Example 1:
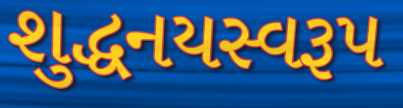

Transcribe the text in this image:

શુદ્ધનયસ્વરૂપ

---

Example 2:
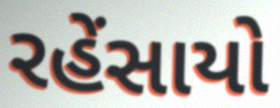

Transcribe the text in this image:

રહેંસાયો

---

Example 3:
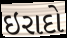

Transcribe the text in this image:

ઇરાદો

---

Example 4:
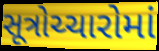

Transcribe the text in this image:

સૂત્રોચ્ચારોમાં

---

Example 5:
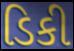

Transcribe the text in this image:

ડિકી